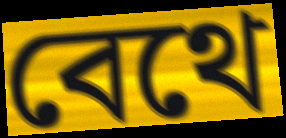
বেথে